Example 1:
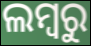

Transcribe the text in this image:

ଲମ୍ବରୁ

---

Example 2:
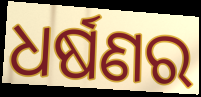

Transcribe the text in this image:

ଧର୍ଷଣର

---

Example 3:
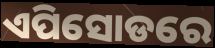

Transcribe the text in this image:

ଏପିସୋଡରେ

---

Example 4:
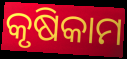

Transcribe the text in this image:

କୃଷିକାମ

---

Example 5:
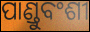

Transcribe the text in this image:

ପାଣ୍ଡୁବଂଶୀ